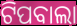
ଟିପବାଲା